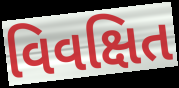
વિવક્ષિત